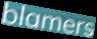
blamers